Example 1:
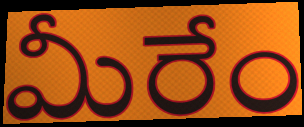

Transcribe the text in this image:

మీరేం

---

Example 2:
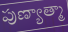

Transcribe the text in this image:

పుణ్యాత్మా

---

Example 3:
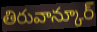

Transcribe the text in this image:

తిరువాన్కూర్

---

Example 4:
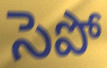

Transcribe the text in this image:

సెపో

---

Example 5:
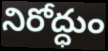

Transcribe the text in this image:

నిరోద్ధుం